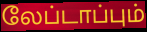
லேப்டாப்பும்